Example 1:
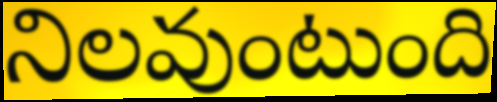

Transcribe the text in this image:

నిలవుంటుంది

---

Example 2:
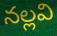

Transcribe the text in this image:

నల్లవి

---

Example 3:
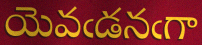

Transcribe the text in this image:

యెవఁడనఁగా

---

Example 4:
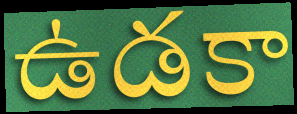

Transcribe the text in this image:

ఉడకా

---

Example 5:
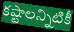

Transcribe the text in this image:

కష్టాలన్నిటికీ